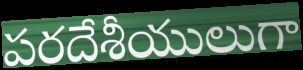
పరదేశీయులుగా